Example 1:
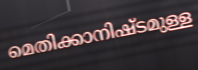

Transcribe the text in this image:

മെതിക്കാനിഷ്ടമുള്ള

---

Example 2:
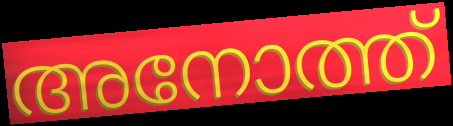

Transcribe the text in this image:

അനോത്ത്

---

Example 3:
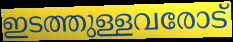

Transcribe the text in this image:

ഇടത്തുള്ളവരോട്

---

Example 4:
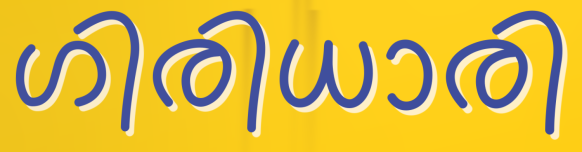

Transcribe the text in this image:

ഗിരിധാരി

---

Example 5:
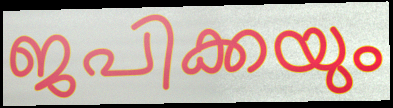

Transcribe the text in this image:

ജപിക്കയും